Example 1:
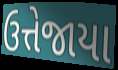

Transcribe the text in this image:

ઉત્તેજાયા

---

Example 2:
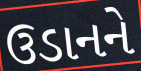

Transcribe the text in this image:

ઉડાનને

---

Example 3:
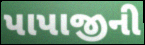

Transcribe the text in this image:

પાપાજીની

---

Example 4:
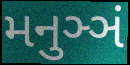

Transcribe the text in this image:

મનુઞ્ઞં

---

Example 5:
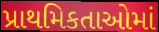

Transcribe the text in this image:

પ્રાથમિકતાઓમાં